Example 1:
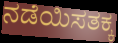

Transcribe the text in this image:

ನಡೆಯಿಸತಕ್ಕ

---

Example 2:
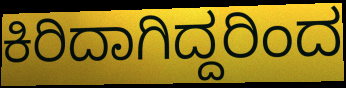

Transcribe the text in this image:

ಕಿರಿದಾಗಿದ್ದರಿಂದ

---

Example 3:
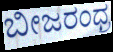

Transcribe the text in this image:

ಬೀಜರಂಧ್ರ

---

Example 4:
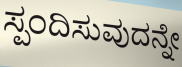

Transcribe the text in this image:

ಸ್ಪಂದಿಸುವುದನ್ನೇ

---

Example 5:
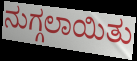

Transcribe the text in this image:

ನುಗ್ಗಲಾಯಿತು